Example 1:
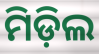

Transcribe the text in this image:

ମିଡ଼ିଲ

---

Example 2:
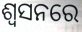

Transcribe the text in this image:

ଶ୍ଵସନରେ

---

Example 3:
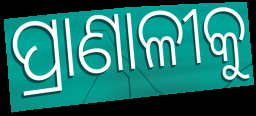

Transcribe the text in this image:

ପ୍ରାଣାଳୀକୁ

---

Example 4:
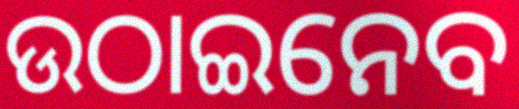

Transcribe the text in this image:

ଉଠାଇନେବ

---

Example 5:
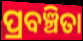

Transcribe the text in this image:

ପ୍ରବଞ୍ଚିତା